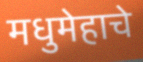
मधुमेहाचे